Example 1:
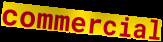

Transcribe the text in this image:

commercial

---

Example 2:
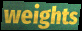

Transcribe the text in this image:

weights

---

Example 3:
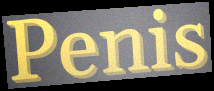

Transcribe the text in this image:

Penis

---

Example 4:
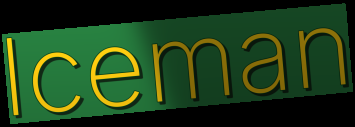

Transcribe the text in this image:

Iceman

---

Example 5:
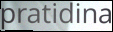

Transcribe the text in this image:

pratidina